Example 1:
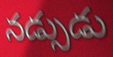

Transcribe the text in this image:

నడ్సుడు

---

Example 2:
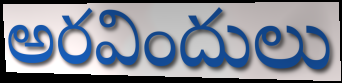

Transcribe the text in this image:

అరవిందులు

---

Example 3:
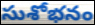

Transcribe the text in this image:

సుశోభనం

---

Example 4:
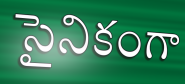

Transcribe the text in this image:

సైనికంగా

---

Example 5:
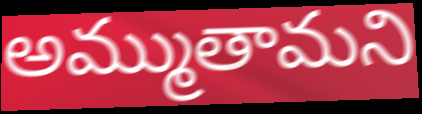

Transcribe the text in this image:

అమ్ముతామని